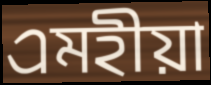
এমহীয়া